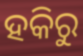
ହକିରୁ